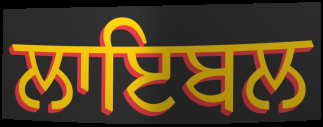
ਲਾਇਬਲ